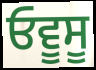
ਓਵੂਸੂ